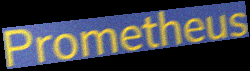
Prometheus